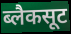
ब्लैकसूट